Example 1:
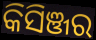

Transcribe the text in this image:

କିସିଞ୍ଜର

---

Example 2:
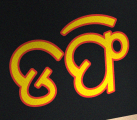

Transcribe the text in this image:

ଡଫି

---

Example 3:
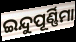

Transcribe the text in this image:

ଇନ୍ଦୁପୂର୍ଣ୍ଣିମା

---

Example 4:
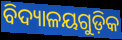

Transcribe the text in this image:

ବିଦ୍ୟାଳୟଗୁଡ଼ିକ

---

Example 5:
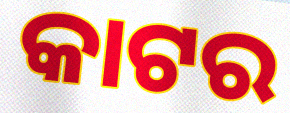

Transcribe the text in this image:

କାଟର